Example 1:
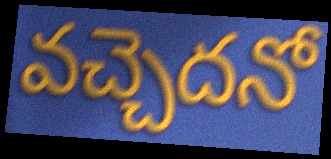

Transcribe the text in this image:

వచ్చెదనో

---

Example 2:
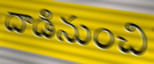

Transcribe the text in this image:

దాడినుంచి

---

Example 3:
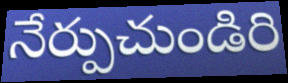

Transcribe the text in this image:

నేర్పుచుండిరి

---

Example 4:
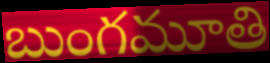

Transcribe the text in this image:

బుంగమూతి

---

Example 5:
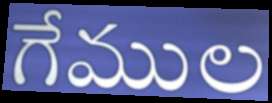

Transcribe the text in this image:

గేముల